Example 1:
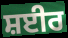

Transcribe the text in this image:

ਸ਼ਈਰ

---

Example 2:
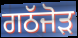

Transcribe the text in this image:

ਗਠੱਜੋੜ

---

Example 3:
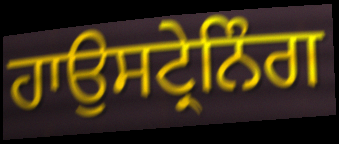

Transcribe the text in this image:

ਹਾਉਸਟ੍ਰੇਨਿੰਗ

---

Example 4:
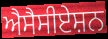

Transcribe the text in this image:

ਐਸੈਸੀਏਸ਼ਨ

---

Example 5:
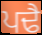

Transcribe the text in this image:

ਪਢੈ